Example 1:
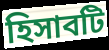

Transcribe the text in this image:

হিসাবটি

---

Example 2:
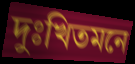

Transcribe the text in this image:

দুঃখিতমনে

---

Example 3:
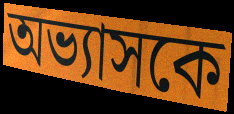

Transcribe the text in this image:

অভ্যাসকে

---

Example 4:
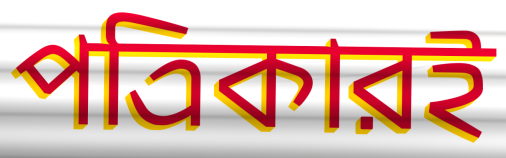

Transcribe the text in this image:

পত্রিকারই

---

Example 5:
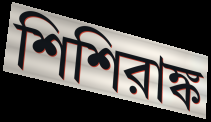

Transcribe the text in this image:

শিশিরাঙ্ক